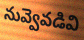
నువ్వెవడివి